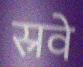
स्रवे